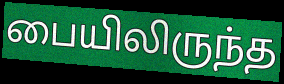
பையிலிருந்த